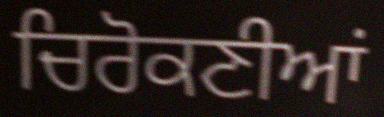
ਚਿਰੋਕਣੀਆਂ